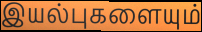
இயல்புகளையும்